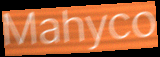
Mahyco